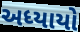
અધ્યાયો